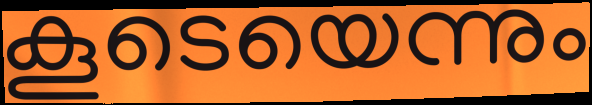
കൂടെയെന്നും